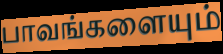
பாவங்களையும்